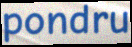
pondru